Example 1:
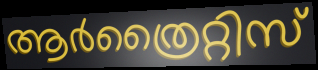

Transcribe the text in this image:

ആർത്രൈറ്റിസ്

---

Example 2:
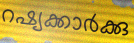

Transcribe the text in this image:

റഷ്യക്കാർക്കു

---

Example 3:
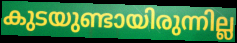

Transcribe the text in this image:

കുടയുണ്ടായിരുന്നില്ല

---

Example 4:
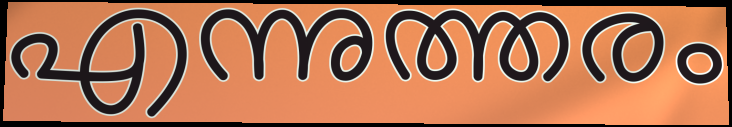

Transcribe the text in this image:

എന്നുത്തരം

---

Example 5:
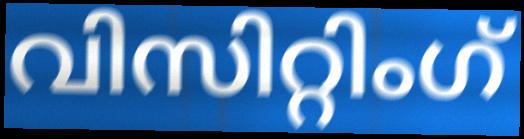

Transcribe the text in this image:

വിസിറ്റിംഗ്